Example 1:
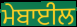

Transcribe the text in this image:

ਮੇਬਾਈਲ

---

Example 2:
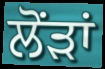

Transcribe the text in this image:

ਲੋਂੜਾਂ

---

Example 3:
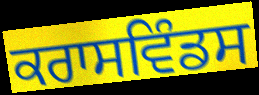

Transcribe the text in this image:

ਕਰਾਸਵਿੰਡਸ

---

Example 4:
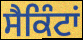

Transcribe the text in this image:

ਸੈਕਿੰਟਾਂ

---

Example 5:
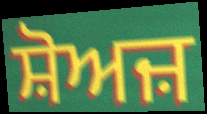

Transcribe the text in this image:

ਸ਼ੋਅਜ਼